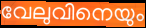
വേലുവിനെയും